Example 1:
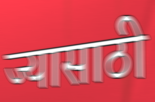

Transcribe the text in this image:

ज्यासाठी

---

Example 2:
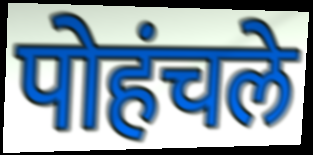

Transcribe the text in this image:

पोहंचले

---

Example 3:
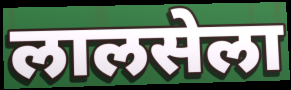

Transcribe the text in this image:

लालसेला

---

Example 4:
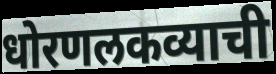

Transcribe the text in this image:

धोरणलकव्याची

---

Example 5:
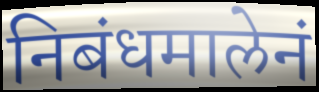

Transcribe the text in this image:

निबंधमालेनं